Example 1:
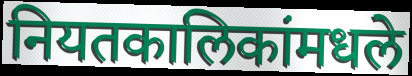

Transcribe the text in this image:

नियतकालिकांमधले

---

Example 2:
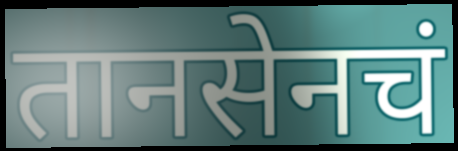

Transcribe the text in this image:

तानसेनचं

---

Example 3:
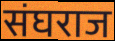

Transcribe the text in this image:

संघराज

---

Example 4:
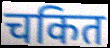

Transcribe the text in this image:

चकित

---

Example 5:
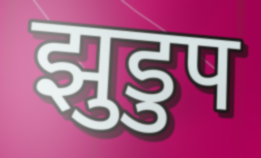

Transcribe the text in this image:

झुडुप